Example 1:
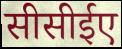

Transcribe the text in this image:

सीसीईए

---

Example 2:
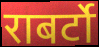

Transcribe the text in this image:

राबर्टो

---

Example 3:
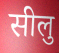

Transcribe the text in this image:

सीलु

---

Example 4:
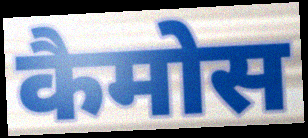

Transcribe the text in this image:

कैमोस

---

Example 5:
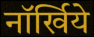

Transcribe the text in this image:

नॉर्खिये